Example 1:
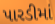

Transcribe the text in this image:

પારડીમાં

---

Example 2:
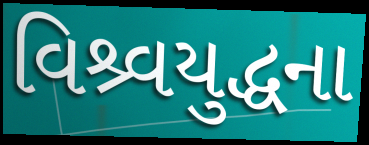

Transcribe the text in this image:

વિશ્ર્વયુદ્ધના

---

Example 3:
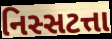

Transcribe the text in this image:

નિસ્સટત્તા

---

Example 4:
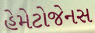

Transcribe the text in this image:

હેમેટોજેનસ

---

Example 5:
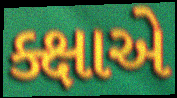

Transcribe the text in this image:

ક્ક્ષાએ